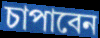
চাপাবেন